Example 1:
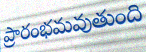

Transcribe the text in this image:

ప్రారంభమవుతుంది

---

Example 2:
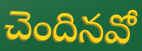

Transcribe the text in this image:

చెందినవో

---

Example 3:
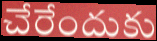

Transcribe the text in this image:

చేరేందుకు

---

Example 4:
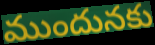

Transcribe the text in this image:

ముందునకు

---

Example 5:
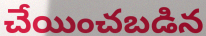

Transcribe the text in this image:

చేయించబడిన